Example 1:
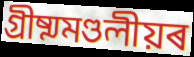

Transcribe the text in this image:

গ্ৰীষ্মমণ্ডলীয়ৰ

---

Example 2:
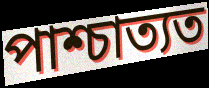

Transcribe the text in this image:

পাশ্চাত্যত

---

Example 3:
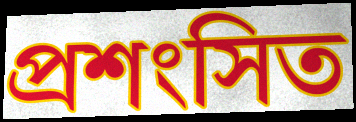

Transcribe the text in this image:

প্ৰশংসিত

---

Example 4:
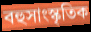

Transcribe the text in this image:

বহুসাংস্কৃতিক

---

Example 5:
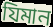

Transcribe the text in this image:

যিমান